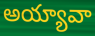
అయ్యావా